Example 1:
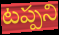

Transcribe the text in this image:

టప్పని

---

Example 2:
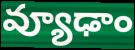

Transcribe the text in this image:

వ్యూఢాం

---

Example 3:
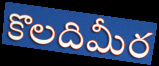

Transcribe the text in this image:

కొలదిమీర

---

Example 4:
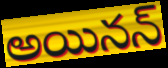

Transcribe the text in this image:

అయినన్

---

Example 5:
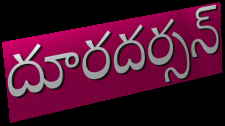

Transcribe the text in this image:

దూరదర్సన్